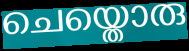
ചെയ്തൊരു